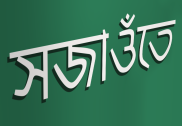
সজাওঁতে